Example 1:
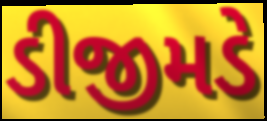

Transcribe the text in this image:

ડીજીમડે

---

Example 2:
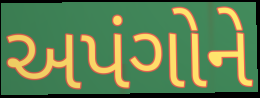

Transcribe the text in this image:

અપંગોને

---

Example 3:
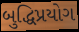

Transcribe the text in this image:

બુદ્ધિપ્રયોગ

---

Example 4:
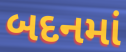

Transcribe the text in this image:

બદનમાં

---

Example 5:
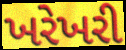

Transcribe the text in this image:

ખરેખરી